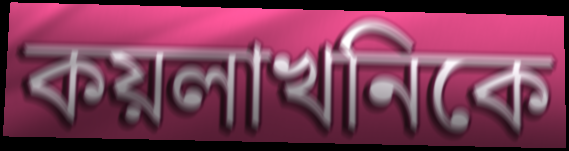
কয়লাখনিকে